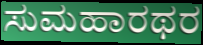
ಸುಮಹಾರಥರ